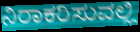
ನಿರಾಕರಿಸುವಲ್ಲಿ